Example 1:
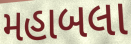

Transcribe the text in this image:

મહાબલા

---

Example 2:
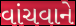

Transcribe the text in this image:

વાંચવાને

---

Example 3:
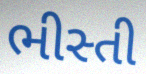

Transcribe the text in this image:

ભીસ્તી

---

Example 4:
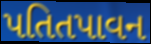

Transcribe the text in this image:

પતિતપાવન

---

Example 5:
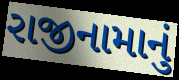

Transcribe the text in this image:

રાજીનામાનું